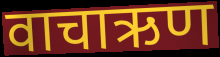
वाचाऋण